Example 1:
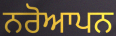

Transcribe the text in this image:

ਨਰੋਆਪਨ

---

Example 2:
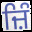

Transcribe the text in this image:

ਜ਼ਿੰ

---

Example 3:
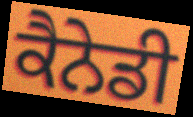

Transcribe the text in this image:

ਕੈਨੇਡੀ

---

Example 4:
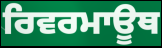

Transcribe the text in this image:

ਰਿਵਰਮਾਊਥ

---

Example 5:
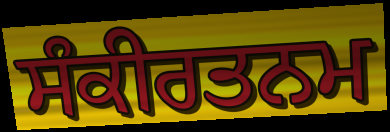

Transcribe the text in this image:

ਸੰਕੀਰਤਨਮ